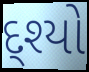
દ્શ્યો